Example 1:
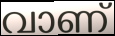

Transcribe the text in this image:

വാണ്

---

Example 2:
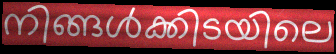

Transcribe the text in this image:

നിങ്ങൾക്കിടയിലെ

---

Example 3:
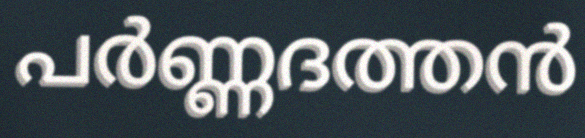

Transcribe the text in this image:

പർണ്ണദത്തൻ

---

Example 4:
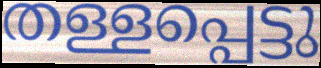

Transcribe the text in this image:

തള്ളപ്പെട്ടു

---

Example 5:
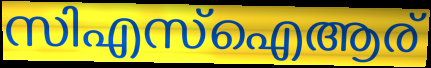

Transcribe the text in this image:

സിഎസ്ഐആര്